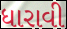
ધારાવી